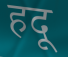
हदू